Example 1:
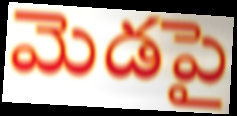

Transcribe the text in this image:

మెడపై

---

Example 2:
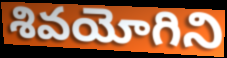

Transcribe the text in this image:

శివయోగిని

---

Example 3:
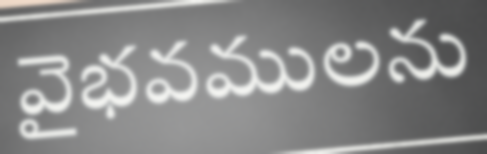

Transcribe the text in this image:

వైభవములను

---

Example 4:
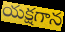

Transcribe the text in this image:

యక్షగాన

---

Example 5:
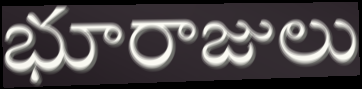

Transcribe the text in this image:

భూరాజులు